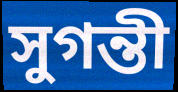
সুগন্তী